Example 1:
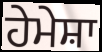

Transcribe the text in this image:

ਹੇਮੇਸ਼ਾ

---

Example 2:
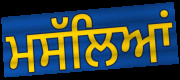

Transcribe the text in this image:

ਮਸੱਲਿਆਂ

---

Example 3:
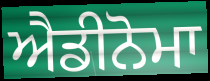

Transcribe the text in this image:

ਐਡੀਨੋਮਾ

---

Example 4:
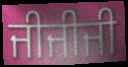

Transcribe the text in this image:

ਜੀਜੀਜੀ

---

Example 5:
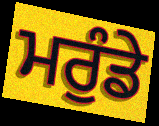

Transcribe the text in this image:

ਮਰੁੰਡੇ